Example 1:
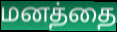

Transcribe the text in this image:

மனத்தை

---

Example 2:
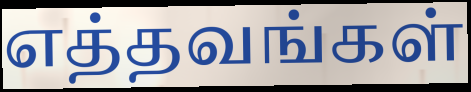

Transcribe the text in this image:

எத்தவங்கள்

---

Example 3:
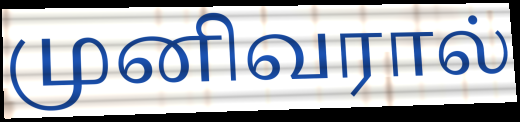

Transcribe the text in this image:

முனிவரால்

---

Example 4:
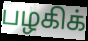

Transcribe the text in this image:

பழகிக்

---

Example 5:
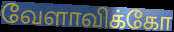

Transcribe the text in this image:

வேளாவிக்கோ